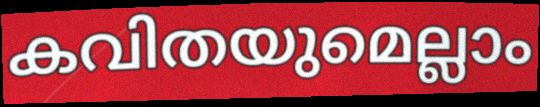
കവിതയുമെല്ലാം